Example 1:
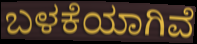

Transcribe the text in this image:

ಬಳಕೆಯಾಗಿವೆ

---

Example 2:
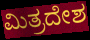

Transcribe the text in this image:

ಮಿತ್ರದೇಶ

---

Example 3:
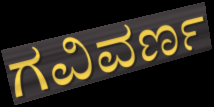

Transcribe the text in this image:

ಗವಿವರ್ಣ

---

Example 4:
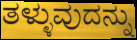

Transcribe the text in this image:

ತಳ್ಳುವುದನ್ನು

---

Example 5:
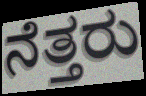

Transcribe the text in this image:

ನೆತ್ತರು